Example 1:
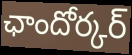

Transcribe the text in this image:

ఛాందోర్కర్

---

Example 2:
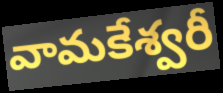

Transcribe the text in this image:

వామకేశ్వరీ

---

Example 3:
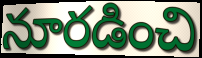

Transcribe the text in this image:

నూరడించి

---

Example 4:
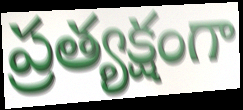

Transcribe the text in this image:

ప్రత్యక్షంగా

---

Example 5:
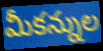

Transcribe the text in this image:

మీకన్నుల